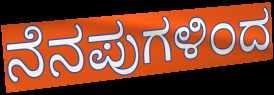
ನೆನಪುಗಳಿಂದ